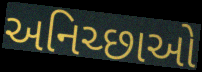
અનિચ્છાઓ